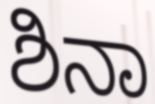
ಶಿನಾ